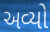
અવ્યો